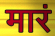
मारं